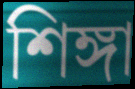
শিঙ্গা